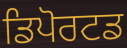
ਡਿਪੋਰਟਡ